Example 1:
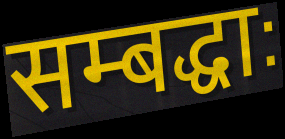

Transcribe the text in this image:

सम्बद्धाः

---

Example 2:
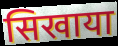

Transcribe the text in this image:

सिखाया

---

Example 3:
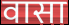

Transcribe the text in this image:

वासा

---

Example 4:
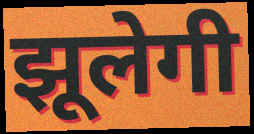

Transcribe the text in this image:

झूलेगी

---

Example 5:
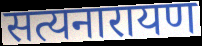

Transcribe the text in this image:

सत्यनारायण